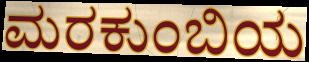
ಮರಕುಂಬಿಯ